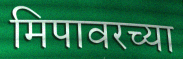
मिपावरच्या